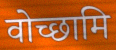
वोच्छामि